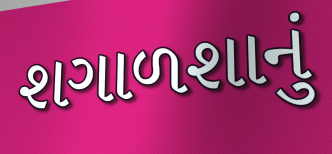
શગાળશાનું